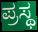
ಪ್ರಸ್ಥ